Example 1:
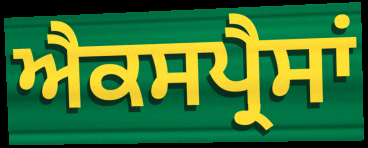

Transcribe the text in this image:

ਐਕਸਪ੍ਰੈਸਾਂ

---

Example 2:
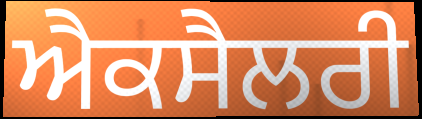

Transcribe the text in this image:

ਐਕਸੈਲਰੀ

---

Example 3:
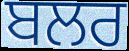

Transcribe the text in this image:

ਬਲਰ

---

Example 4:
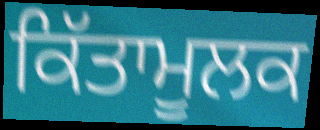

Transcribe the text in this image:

ਕਿੱਤਾਮੂਲਕ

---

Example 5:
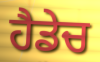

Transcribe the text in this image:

ਹੈਡੇਚ